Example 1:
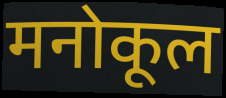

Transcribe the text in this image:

मनोकूल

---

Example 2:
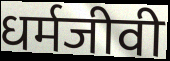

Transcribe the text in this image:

धर्मजीवी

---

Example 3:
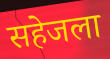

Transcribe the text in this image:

सहेजला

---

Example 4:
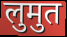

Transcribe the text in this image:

लुमुत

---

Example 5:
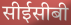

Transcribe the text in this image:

सीईसीबी